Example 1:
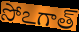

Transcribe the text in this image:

సోఽగాత్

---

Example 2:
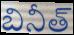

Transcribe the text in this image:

బినీత్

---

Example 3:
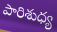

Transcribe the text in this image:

పారిశుధ్య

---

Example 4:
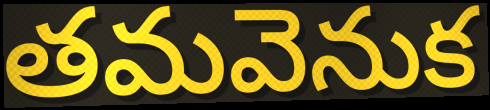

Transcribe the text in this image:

తమవెనుక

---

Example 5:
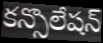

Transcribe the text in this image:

కన్సొలేషన్